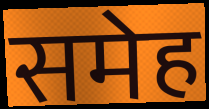
समेह